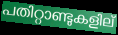
പതിറ്റാണ്ടുകളില്